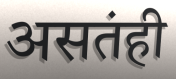
असतंही